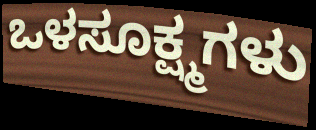
ಒಳಸೂಕ್ಷ್ಮಗಳು